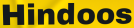
Hindoos